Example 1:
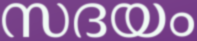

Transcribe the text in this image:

സദയം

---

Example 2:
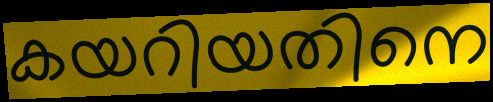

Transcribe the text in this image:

കയറിയതിനെ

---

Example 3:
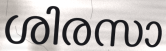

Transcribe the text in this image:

ശിരസാ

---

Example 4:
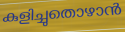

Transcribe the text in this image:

കുളിച്ചുതൊഴാൻ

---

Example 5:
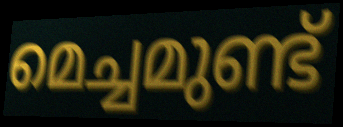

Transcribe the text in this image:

മെച്ചമുണ്ട്